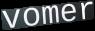
vomer